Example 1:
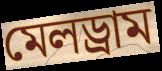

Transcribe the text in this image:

মেলড্রাম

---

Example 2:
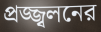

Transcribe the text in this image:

প্রজ্জ্বলনের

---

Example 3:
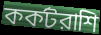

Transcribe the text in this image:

কর্কটরাশি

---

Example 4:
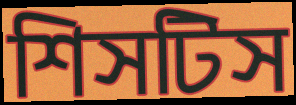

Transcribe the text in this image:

শিসটিস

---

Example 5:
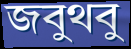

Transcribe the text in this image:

জবুথবু